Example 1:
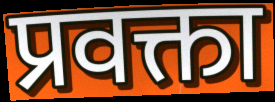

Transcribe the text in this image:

प्रवक्ता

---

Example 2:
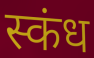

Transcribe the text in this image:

स्कंध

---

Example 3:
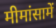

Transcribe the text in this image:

मीमांसामें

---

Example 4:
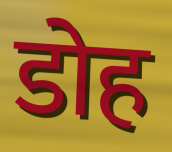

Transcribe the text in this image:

डोह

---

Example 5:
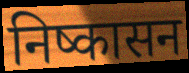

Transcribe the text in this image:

निष्कासन